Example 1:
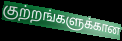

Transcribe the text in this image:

குற்றங்களுக்கான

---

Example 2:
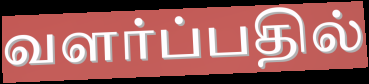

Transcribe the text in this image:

வளர்ப்பதில்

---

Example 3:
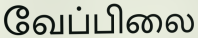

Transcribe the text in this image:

வேப்பிலை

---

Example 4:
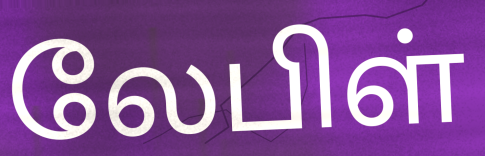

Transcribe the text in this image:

லேபிள்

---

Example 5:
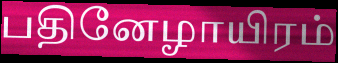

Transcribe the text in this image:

பதினேழாயிரம்